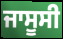
ਜਾਸੂਸੀ